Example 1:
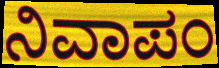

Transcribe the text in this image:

ನಿವಾಪಂ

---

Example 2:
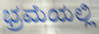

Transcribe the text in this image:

ಭ್ರಮೆಯಲ್ಲಿ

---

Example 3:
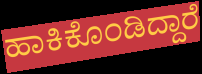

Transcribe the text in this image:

ಹಾಕಿಕೊಂಡಿದ್ದಾರೆ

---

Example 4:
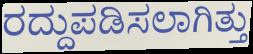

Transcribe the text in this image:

ರದ್ದುಪಡಿಸಲಾಗಿತ್ತು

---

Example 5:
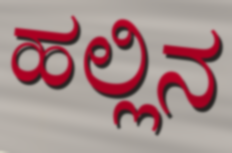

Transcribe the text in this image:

ಹಲ್ಲಿನ